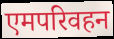
एमपरिवहन